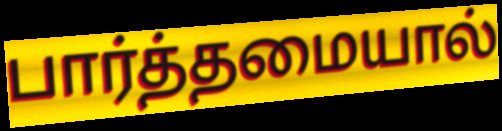
பார்த்தமையால்